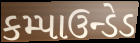
કમ્પાઉન્ડેડ